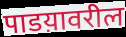
पाडय़ावरील